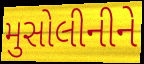
મુસોલીનીને